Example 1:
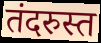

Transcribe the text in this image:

तंदरुस्त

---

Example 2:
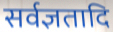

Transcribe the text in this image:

सर्वज्ञतादि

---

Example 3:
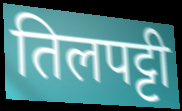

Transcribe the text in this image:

तिलपट्टी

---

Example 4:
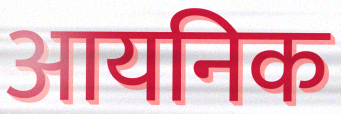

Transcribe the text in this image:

आयनिक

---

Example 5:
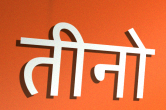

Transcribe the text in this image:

तीनो